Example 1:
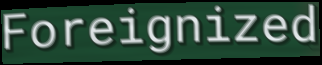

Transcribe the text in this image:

Foreignized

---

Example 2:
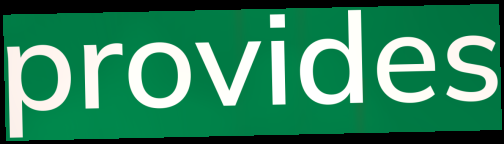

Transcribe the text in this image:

provides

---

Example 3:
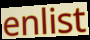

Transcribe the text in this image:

enlist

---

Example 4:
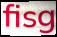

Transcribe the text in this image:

fisg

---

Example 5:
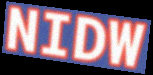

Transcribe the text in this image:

NIDW